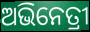
ଅଭିନେତ୍ରୀ